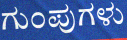
ಗುಂಪುಗಳು